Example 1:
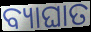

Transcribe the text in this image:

ବ୍ୟାଘାତ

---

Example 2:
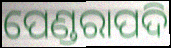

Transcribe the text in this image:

ପେଣ୍ଡରାପଦି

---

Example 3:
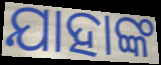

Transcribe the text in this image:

ଯାହାଙ୍କ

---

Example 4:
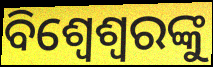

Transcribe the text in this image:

ବିଶ୍ୱେଶ୍ୱରଙ୍କୁ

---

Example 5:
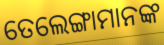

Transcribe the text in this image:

ତେଲେଙ୍ଗାମାନଙ୍କ